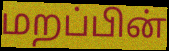
மறப்பின்